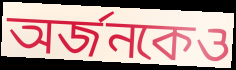
অর্জনকেও